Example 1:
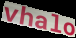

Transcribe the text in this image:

vhalo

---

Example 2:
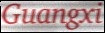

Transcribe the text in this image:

Guangxi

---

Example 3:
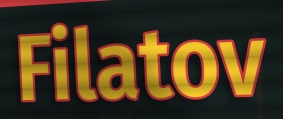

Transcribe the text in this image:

Filatov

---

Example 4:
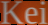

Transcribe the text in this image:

Kei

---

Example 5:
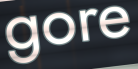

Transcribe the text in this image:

gore